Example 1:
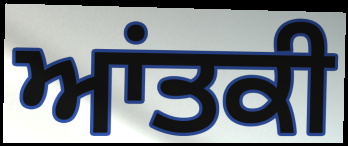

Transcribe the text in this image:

ਆਂਤਕੀ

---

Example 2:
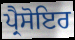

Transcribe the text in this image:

ਪ੍ਰੈਸੋਇਰ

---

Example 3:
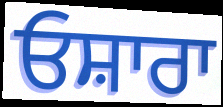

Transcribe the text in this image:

ਓਸ਼ਾਰਾ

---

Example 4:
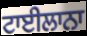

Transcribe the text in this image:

ਟਾਈਲਾਨਾ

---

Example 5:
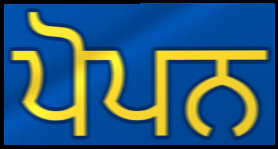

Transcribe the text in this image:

ਪੋਪਨ